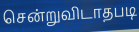
சென்றுவிடாதபடி